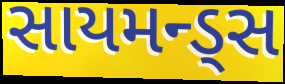
સાયમન્ડ્સ